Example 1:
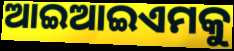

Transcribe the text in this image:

ଆଇଆଇଏମକୁ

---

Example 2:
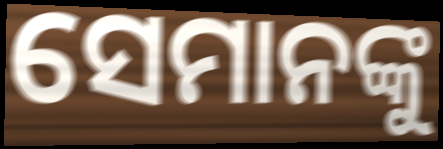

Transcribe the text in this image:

ସେମାନଙ୍କୁ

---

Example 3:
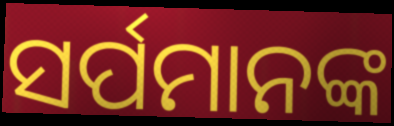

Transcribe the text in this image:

ସର୍ପମାନଙ୍କ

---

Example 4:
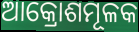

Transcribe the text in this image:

ଆକ୍ରୋଶମୂଳକ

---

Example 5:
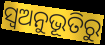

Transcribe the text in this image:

ସ୍ୱଅନୁଭୂତିରୁ